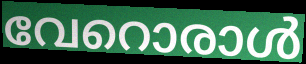
വേറൊരാൾ